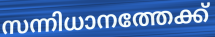
സന്നിധാനത്തേക്ക്